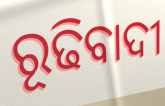
ରୂଢିବାଦୀ